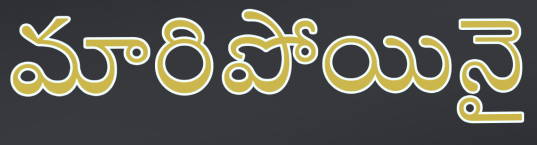
మారిపోయినై